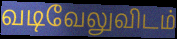
வடிவேலுவிடம்